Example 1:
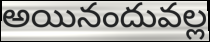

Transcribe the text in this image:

అయినందువల్ల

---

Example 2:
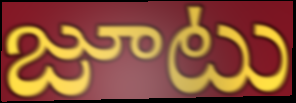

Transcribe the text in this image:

జూటు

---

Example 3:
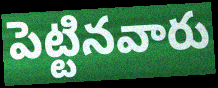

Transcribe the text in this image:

పెట్టినవారు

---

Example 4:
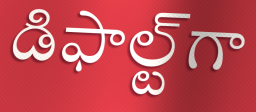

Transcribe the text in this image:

డిఫాల్ట్‌గా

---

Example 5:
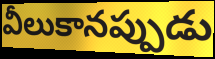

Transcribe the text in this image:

వీలుకానప్పుడు